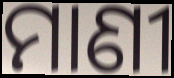
ମାଣୀ